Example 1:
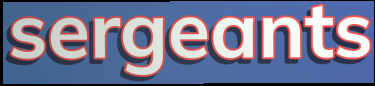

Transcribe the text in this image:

sergeants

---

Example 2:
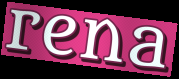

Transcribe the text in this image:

rena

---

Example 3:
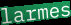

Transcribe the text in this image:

larmes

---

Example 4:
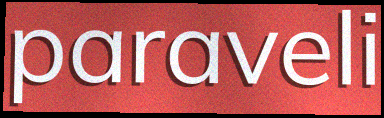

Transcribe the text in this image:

paraveli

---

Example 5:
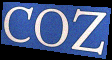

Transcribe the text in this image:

COZ